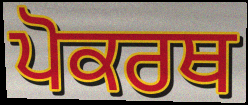
ਪੋਕਰਥ